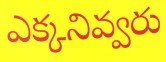
ఎక్కనివ్వరు